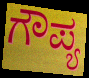
ಗೌಪ್ಯ